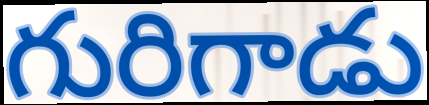
గురిగాడు